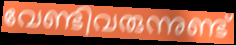
വേണ്ടിവരുന്നുണ്ട്